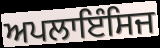
ਅਪਲਾਇੰਸਿਜ